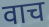
वाच